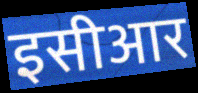
इसीआर